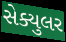
સેક્યુલર